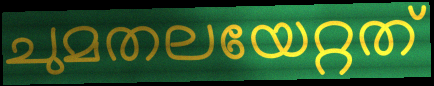
ചുമതലയേറ്റത്